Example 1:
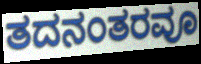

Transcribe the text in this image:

ತದನಂತರವೂ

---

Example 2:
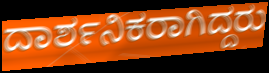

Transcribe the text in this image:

ದಾರ್ಶನಿಕರಾಗಿದ್ದರು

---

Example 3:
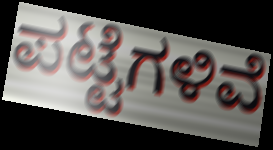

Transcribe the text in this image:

ಪಟ್ಟೆಗಳಿವೆ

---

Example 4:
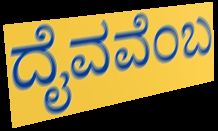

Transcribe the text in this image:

ದೈವವೆಂಬ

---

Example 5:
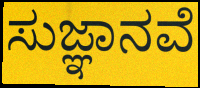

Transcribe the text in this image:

ಸುಜ್ಞಾನವೆ